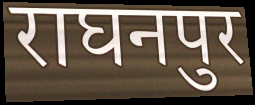
राघनपुर